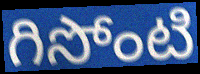
గిసోంటి